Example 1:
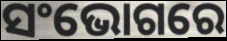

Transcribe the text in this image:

ସଂଭୋଗରେ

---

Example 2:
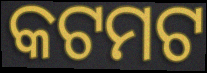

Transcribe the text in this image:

କଟମଟ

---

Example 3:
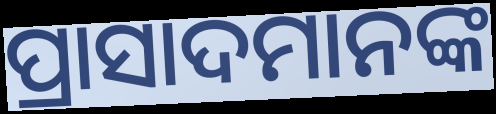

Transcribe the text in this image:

ପ୍ରାସାଦମାନଙ୍କ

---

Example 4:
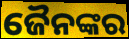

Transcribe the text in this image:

ଜୈନଙ୍କର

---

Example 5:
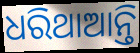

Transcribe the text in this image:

ଧରିଥାଆନ୍ତି